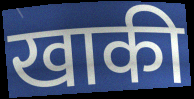
खाकी